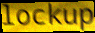
lockup